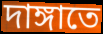
দাঙ্গাতে